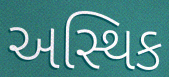
અસ્થિક